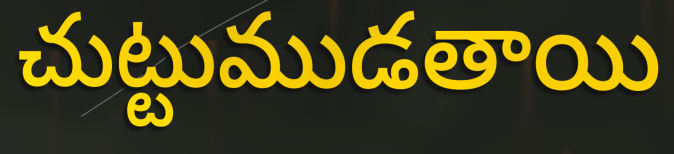
చుట్టుముడతాయి